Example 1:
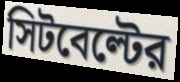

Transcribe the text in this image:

সিটবেল্টের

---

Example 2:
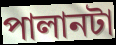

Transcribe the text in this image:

পালানটা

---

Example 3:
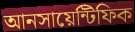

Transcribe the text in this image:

আনসায়েন্টিফিক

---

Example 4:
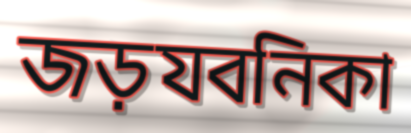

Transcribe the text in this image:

জড়যবনিকা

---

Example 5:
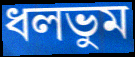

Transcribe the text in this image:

ধলভুম